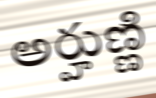
అర్హుణ్ణి